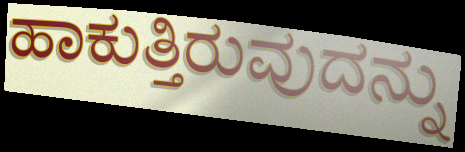
ಹಾಕುತ್ತಿರುವುದನ್ನು